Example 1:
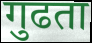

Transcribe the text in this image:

गुढता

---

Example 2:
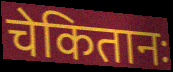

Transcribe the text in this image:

चेकितानः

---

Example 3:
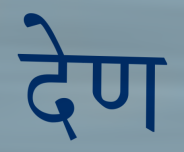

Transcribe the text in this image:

देण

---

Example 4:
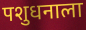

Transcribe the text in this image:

पशुधनाला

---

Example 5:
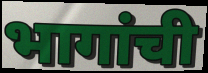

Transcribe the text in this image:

भागांची